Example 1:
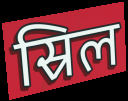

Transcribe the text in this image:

स्रिल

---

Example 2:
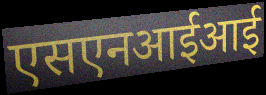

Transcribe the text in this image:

एसएनआईआई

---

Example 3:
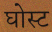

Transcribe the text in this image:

घोस्ट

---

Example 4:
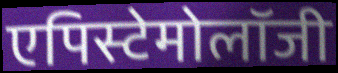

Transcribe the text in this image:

एपिस्टेमोलॉजी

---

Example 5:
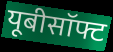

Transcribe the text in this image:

यूबीसॉफ्ट